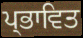
ਪ੍ਭਾਵਿਤ